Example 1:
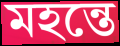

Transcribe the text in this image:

মহন্তে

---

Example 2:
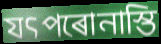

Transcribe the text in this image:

যৎপৰোনাস্তি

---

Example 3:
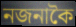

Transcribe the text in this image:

নজনাকৈ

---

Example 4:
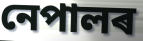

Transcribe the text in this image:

নেপালৰ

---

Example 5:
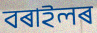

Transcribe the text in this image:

বৰাইলৰ